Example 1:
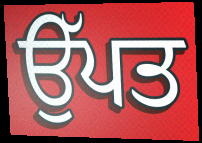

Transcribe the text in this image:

ਉੱਪਤ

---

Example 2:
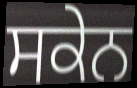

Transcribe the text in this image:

ਸਕੇਨ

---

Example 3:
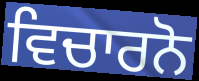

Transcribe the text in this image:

ਵਿਚਾਰਨੋ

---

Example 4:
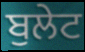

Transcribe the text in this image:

ਬੁਲੇਟ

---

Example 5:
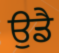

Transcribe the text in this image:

ਉਡੈ